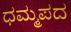
ಧಮ್ಮಪದ